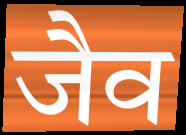
जैव